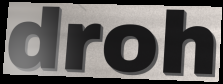
droh